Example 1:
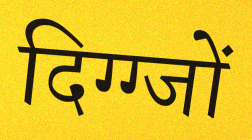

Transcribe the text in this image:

दिग्ग्जों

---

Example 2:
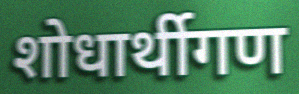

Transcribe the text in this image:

शोधार्थीगण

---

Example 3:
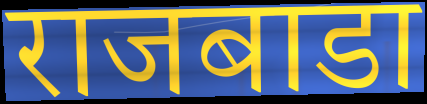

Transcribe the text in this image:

राजबाडा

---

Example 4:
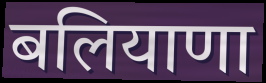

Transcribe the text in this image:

बलियाणा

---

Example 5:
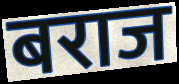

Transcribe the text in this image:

बराज